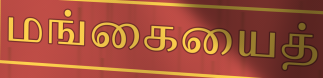
மங்கையைத்